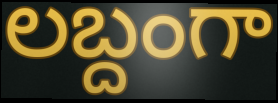
లబ్దంగా